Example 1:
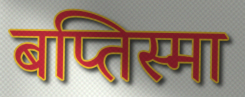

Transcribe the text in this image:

बप्तिस्मा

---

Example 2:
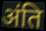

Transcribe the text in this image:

अंति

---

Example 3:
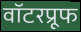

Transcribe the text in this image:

वॉटरप्रूफ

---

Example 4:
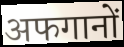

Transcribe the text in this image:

अफगानों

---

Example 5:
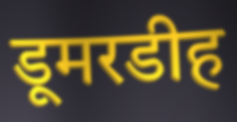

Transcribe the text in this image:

डूमरडीह